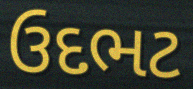
ઉદભટ